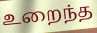
உறைந்த